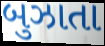
બુઝાતા